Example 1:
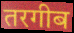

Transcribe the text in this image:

तरगीब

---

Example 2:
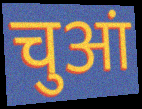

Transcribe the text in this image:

चुआं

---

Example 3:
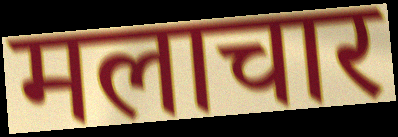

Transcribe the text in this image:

मलाचार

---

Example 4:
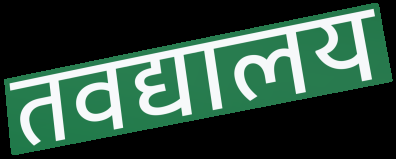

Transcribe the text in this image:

तवद्यालय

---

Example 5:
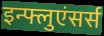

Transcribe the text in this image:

इन्फ्लुएंसर्स